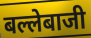
बल्लेबाजी